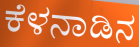
ಕೆಳನಾಡಿನ